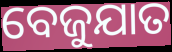
ବେଜୁଯାତ